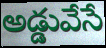
అడ్డువేసే